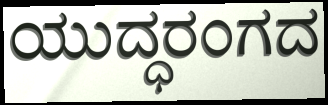
ಯುದ್ಧರಂಗದ